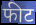
फीट